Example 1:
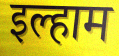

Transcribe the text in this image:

इल्हाम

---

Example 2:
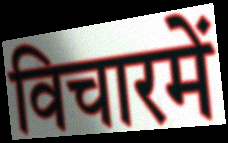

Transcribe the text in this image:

विचारमें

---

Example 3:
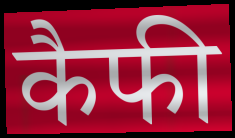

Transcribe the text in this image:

कैफी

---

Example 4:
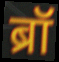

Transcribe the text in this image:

ब्रॉ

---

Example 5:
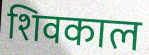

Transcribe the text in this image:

शिवकाल